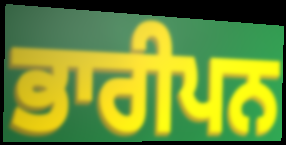
ਭਾਰੀਪਨ